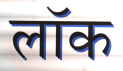
लॉक